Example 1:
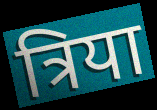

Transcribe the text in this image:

त्रिया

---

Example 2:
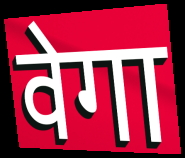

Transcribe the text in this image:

वेगा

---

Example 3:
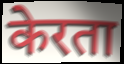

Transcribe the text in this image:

केरता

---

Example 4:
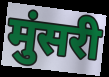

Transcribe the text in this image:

मुंसरी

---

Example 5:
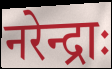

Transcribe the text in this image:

नरेन्द्राः